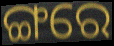
ଙ୍ଗରେ